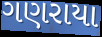
ગણરાયા